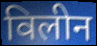
विलीन